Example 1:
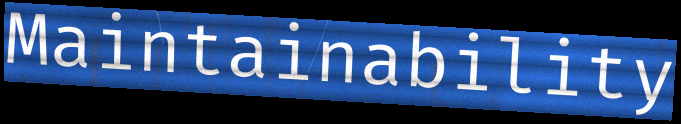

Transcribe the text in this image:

Maintainability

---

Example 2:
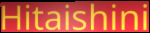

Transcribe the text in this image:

Hitaishini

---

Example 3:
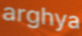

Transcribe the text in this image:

arghya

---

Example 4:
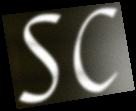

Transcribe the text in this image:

SC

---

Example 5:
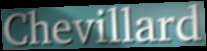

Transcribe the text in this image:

Chevillard